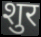
शुर